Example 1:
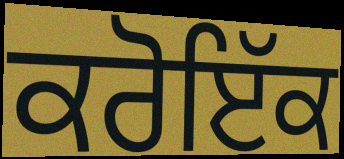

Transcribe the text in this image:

ਕਰੋਇੱਕ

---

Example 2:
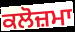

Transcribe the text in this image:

ਕਲੋਜ਼ਮਾ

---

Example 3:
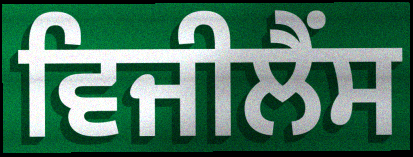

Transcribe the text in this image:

ਵਿਜੀਲੈਂਸ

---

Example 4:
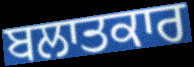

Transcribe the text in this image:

ਬਲਾਤਕਾਰ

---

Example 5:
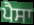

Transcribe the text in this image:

ਪੈਸਾ